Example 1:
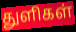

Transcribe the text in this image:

துளிகள்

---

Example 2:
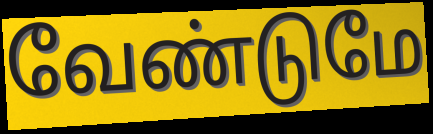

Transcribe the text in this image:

வேண்டுமே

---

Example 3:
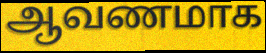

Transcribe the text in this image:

ஆவணமாக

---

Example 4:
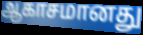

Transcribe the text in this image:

ஆகாசமானது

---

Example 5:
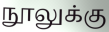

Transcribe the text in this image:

நூலுக்கு